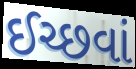
ઈચ્છવાં